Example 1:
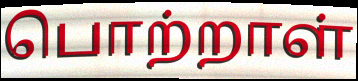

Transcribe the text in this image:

பொற்றாள்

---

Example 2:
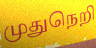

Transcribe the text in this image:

முதுநெறி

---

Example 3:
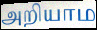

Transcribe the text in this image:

அறியாம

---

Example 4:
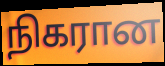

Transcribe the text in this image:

நிகரான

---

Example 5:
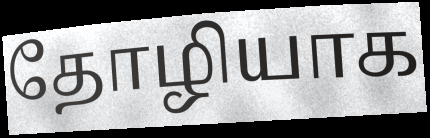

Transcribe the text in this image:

தோழியாக